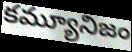
కమ్యూనిజం